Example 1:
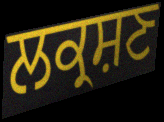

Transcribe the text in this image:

ਲਕ੍ਰਸ਼ਣ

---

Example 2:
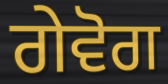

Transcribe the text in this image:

ਗੇਵੋਗ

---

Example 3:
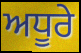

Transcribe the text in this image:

ਅਧੂਰੇ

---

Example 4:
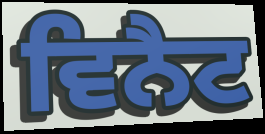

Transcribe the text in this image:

ਵਿਨੈਟ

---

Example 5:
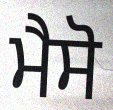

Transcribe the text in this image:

ਮੈਸੋ